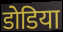
डोडिया